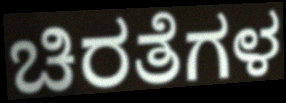
ಚಿರತೆಗಳ